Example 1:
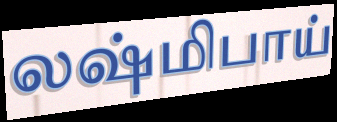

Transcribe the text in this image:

லஷ்மிபாய்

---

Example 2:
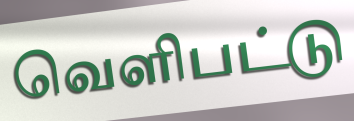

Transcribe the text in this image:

வெளிபட்டு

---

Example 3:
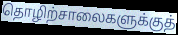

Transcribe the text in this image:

தொழிற்சாலைகளுக்குத்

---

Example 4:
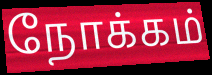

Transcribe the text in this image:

நோக்கம்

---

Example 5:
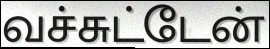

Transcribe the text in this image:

வச்சுட்டேன்